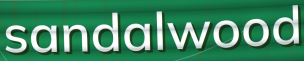
sandalwood